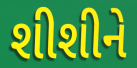
શીશીને